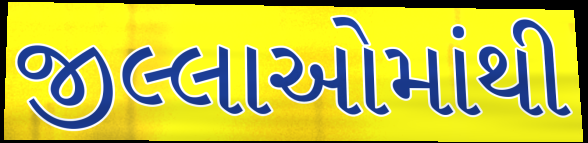
જીલ્લાઓમાંથી